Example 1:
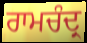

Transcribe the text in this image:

ਰਾਮਚੰਦ੍ਰ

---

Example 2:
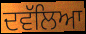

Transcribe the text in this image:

ਦਵੱਲਿਆ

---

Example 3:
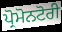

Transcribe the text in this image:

ਪ੍ਰੋਮੋਨਟੋਰੀ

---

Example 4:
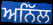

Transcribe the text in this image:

ਅਨਿੱਲ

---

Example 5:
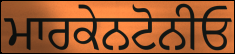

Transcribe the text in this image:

ਮਾਰਕੇਨਟੋਨੀਓ